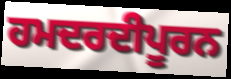
ਹਮਦਰਦੀਪੂਰਨ